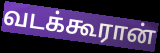
வடக்கூரான்